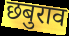
छबुराव